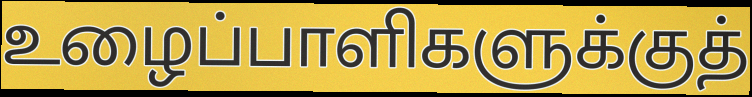
உழைப்பாளிகளுக்குத்